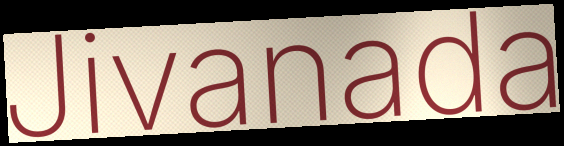
Jivanada